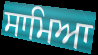
ਸਾਮਿਆ